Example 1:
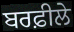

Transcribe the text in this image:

ਬਰਫ਼ੀਲੇ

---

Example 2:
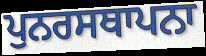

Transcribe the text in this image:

ਪੁਨਰਸਥਾਪਨਾ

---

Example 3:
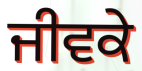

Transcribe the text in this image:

ਜੀਵਕੇ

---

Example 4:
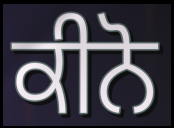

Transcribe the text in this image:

ਕੀਨੋ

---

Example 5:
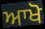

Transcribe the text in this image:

ਆਖੋ